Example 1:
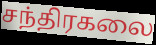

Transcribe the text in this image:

சந்திரகலை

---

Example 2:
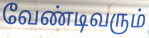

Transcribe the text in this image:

வேண்டிவரும்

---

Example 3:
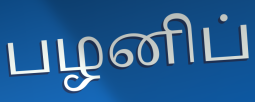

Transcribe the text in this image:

பழனிப்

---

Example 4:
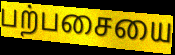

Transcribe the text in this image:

பற்பசையை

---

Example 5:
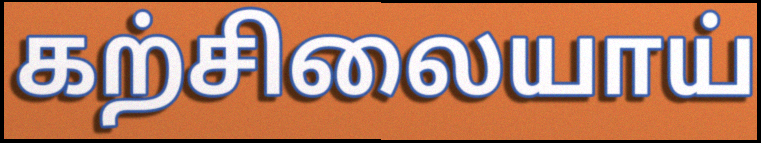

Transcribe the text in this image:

கற்சிலையாய்